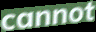
cannot